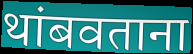
थांबवताना